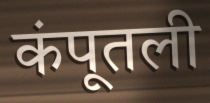
कंपूतली